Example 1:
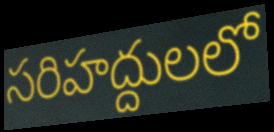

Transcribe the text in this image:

సరిహద్దులలో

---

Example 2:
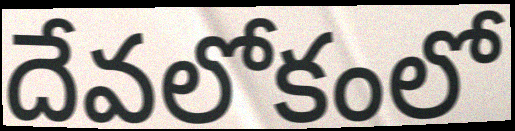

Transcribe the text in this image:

దేవలోకంలో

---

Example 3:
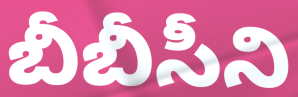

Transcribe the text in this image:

బీబీసీని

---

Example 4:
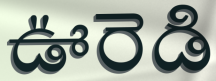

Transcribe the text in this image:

ఊరెడి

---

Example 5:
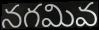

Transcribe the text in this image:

నగమివ